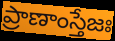
ప్రాణాంస్తేజః